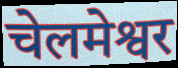
चेलमेश्वर